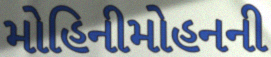
મોહિનીમોહનની